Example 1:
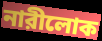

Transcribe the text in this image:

নারীলোক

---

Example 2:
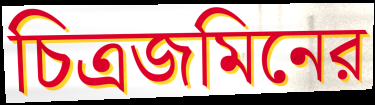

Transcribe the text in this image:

চিত্রজমিনের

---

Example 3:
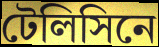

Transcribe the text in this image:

টেলিসিনে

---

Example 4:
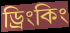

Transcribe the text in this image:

ড্রিংকিং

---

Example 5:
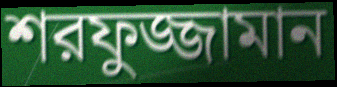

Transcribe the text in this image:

শরফুজ্জামান